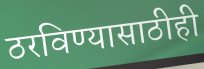
ठरविण्यासाठीही